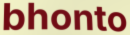
bhonto